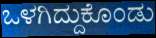
ಒಳಗಿದ್ದುಕೊಂಡು